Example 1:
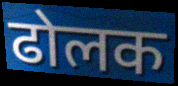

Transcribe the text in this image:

ढोलक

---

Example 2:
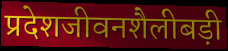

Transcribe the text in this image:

प्रदेशजीवनशैलीबड़ी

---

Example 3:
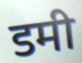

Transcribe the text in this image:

डमी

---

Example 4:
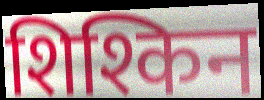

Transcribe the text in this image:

शिश्किन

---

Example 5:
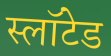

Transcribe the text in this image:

स्लॉटेड